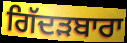
ਗਿੱਦੜਬਾਰਾ